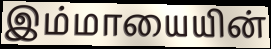
இம்மாயையின்